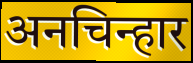
अनचिन्हार